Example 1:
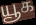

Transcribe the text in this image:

யூக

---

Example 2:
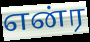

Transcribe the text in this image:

என்ர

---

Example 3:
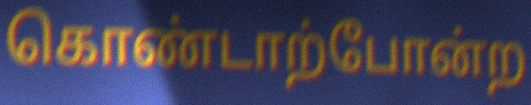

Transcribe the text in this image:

கொண்டாற்போன்ற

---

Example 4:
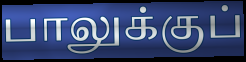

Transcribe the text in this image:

பாலுக்குப்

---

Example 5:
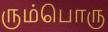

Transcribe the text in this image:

ரும்பொரு